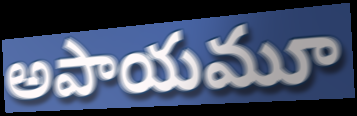
అపాయమూ